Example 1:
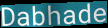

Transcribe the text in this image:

Dabhade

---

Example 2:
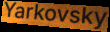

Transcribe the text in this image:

Yarkovsky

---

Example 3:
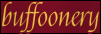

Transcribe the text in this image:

buffoonery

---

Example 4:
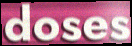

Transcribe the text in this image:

doses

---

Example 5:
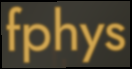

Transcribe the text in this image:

fphys